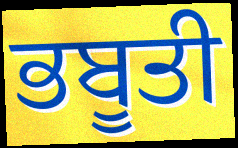
ਭਬੂਤੀ